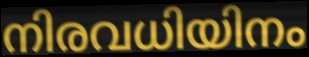
നിരവധിയിനം